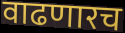
वाढणारच